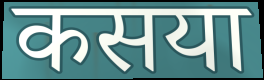
कसया